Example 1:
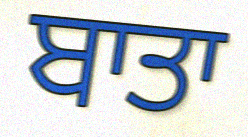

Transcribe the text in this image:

ਬਾਤਾ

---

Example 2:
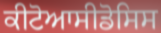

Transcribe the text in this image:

ਕੀਟੋਆਸੀਡੋਸਿਸ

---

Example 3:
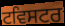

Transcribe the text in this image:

ਟਵਿਸਟਰ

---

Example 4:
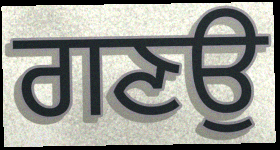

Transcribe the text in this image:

ਗਣਉ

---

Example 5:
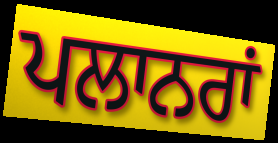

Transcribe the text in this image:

ਪਲਾਨਰਾਂ